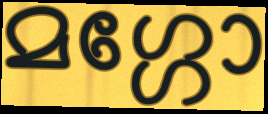
മഗ്ഗോ